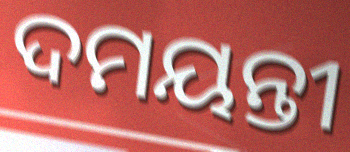
ଦମୟନ୍ତୀ